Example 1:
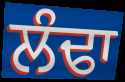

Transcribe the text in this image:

ਲੰਢਾ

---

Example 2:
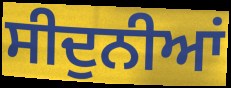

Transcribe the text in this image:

ਸੀਦੁਨੀਆਂ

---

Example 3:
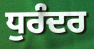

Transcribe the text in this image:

ਧੁਰੰਦਰ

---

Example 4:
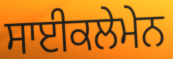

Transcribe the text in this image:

ਸਾਈਕਲੇਮੇਨ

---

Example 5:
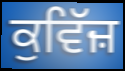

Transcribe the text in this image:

ਕੁਵਿੱਜ਼